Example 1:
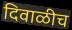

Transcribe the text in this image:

दिवाळीच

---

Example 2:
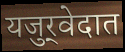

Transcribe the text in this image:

यजुर्वेदात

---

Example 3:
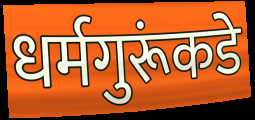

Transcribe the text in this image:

धर्मगुरूंकडे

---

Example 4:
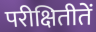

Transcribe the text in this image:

परीक्षितीतें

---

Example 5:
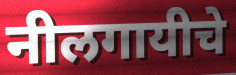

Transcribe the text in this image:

नीलगायीचे